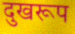
दुखरूप